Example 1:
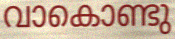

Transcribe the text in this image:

വാകൊണ്ടു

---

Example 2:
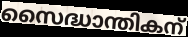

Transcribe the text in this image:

സൈദ്ധാന്തികന്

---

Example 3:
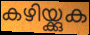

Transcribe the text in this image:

കഴിയ്ക്കുക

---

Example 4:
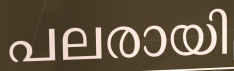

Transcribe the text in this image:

പലരായി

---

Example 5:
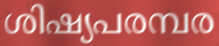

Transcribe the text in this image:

ശിഷ്യപരമ്പര